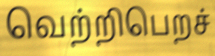
வெற்றிபெறச்